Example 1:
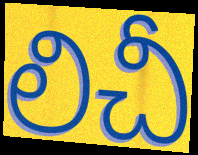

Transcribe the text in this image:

లిచీ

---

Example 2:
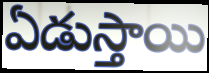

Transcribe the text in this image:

ఏడుస్తాయి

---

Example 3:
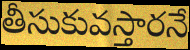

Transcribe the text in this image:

తీసుకువస్తారనే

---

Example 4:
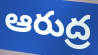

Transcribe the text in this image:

ఆరుద్ర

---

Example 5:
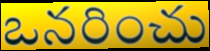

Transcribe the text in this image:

ఒనరించు